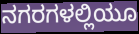
ನಗರಗಳಲ್ಲಿಯೂ